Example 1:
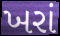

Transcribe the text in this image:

ખરાં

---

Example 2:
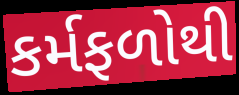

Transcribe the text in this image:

કર્મફળોથી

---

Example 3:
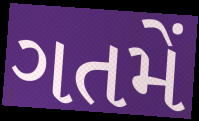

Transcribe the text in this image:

ગતમેં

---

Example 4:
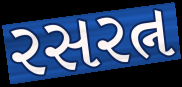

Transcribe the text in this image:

રસરત્ન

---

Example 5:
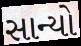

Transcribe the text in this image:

સાન્યો